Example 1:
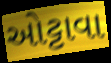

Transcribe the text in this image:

ઓટ્ટાવા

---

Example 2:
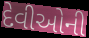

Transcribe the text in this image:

દેવીઓની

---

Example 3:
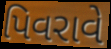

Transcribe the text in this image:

પિવરાવે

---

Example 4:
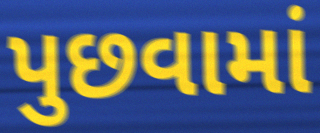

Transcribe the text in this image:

પુછવામાં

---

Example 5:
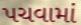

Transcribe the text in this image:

પચવામાં